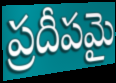
ప్రదీపమై